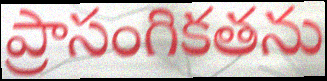
ప్రాసంగికతను